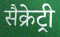
सैक्रेट्री